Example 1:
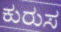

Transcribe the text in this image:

ಕುರುಸ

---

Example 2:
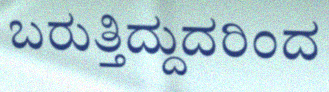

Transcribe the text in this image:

ಬರುತ್ತಿದ್ದುದರಿಂದ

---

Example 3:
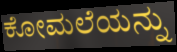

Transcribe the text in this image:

ಕೋಮಲೆಯನ್ನು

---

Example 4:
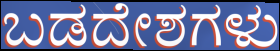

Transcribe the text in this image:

ಬಡದೇಶಗಳು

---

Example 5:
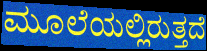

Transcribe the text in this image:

ಮೂಲೆಯಲ್ಲಿರುತ್ತದೆ